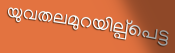
യുവതലമുറയില്പ്പെട്ട